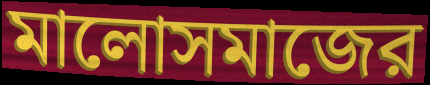
মালোসমাজের